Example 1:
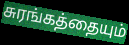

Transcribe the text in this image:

சுரங்கத்தையும்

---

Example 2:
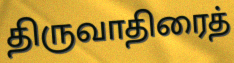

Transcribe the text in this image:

திருவாதிரைத்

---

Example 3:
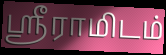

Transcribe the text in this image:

ஸ்ரீராமிடம்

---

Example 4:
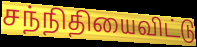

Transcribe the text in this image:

சந்நிதியைவிட்டு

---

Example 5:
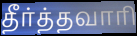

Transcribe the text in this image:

தீர்த்தவாரி